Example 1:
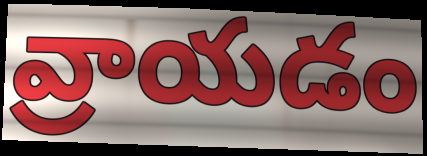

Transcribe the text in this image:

వ్రాయడం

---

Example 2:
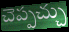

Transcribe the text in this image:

చెప్పచ్చు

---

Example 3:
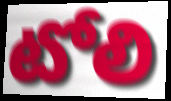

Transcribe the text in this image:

టోలి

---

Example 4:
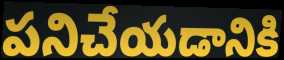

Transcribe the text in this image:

పనిచేయడానికి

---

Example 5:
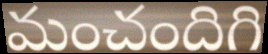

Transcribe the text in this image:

మంచందిగి